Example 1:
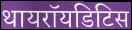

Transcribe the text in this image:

थायरॉयडिटिस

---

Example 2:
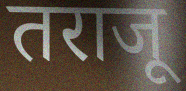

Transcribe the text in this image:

तराजू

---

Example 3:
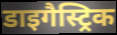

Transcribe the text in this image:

डाइगैस्ट्रिक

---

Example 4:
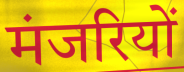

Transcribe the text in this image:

मंजरियों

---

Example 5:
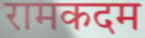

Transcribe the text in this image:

रामकदम